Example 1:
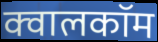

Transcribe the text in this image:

क्‍वालकॉम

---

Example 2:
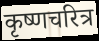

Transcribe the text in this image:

कृष्णचरित्र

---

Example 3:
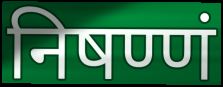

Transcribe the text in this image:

निषण्णं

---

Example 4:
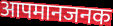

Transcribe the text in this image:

आपमानजनक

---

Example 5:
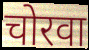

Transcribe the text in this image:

चोरवा